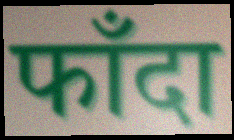
फाँदा